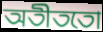
অতীততো